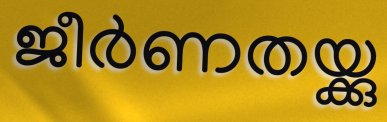
ജീർണതയ്ക്കു